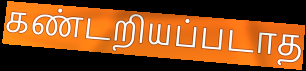
கண்டறியப்படாத